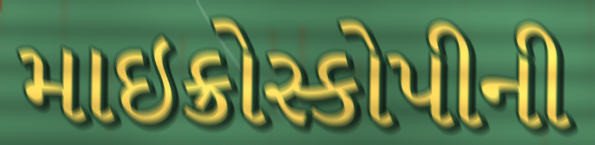
માઇક્રોસ્કોપીની